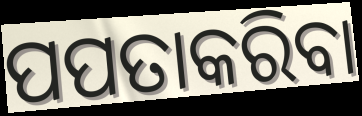
ପପତାକରିବା